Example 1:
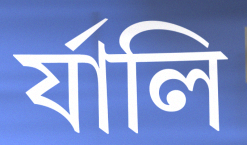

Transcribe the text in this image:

র্যালি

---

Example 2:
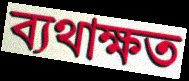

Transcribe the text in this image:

ব্যথাক্ষত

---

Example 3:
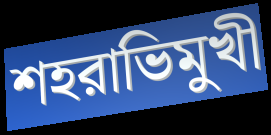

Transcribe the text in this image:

শহরাভিমুখী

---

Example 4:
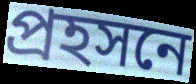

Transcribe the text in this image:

প্রহসনে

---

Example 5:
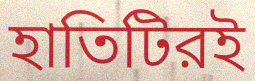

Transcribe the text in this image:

হাতিটিরই